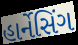
હાર્નેસિંગ